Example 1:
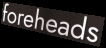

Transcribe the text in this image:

foreheads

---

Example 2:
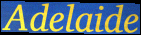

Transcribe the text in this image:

Adelaide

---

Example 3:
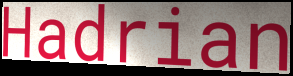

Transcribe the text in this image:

Hadrian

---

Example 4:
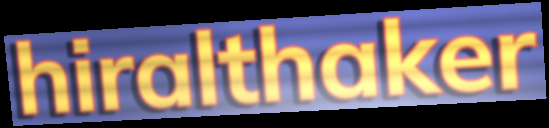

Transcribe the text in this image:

hiralthaker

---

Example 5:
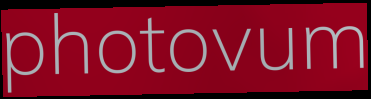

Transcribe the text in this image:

photovum